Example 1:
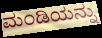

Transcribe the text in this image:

ಮಂಡಿಯನ್ನು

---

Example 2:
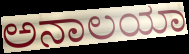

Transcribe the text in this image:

ಅನಾಲಯಾ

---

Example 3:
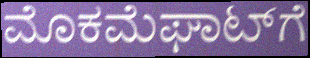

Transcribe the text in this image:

ಮೊಕಮೆಘಾಟ್‌ಗೆ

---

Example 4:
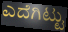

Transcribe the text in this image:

ಎದೆಗಿಟ್ಟು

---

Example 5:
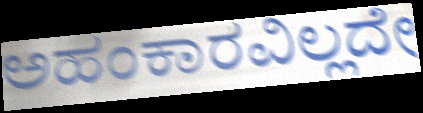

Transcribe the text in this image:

ಅಹಂಕಾರವಿಲ್ಲದೇ